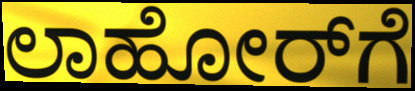
ಲಾಹೋರ್‌ಗೆ